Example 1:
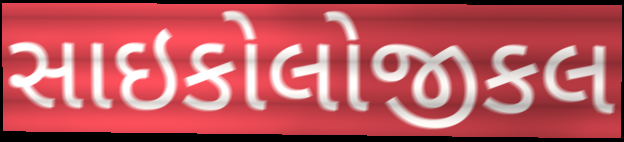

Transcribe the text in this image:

સાઇકોલોજીકલ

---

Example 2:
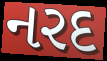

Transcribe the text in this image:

નરદ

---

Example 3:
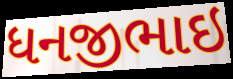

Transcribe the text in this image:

ધનજીભાઇ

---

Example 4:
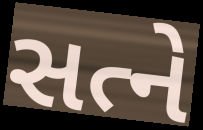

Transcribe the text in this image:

સત્ને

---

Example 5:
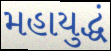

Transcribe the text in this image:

મહાયુદ્ધં